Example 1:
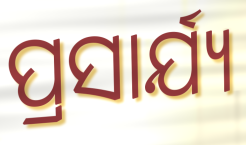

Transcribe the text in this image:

ପ୍ରସାର୍ଯ୍ୟ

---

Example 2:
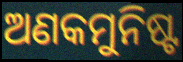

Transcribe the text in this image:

ଅଣକମୁନିଷ୍ଟ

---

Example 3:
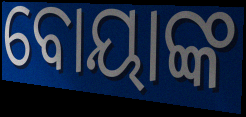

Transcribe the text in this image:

ବୋୟାଙ୍କ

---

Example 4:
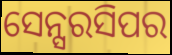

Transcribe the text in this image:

ସେନ୍ସରସିପର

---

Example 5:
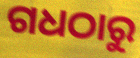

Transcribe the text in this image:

ଗଧଠାରୁ